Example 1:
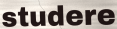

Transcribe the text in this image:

studere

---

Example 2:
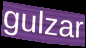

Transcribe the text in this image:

gulzar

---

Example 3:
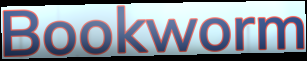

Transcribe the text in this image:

Bookworm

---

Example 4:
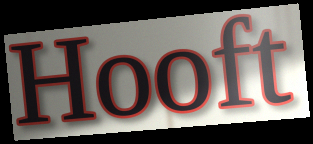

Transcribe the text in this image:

Hooft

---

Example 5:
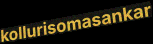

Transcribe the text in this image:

kollurisomasankar